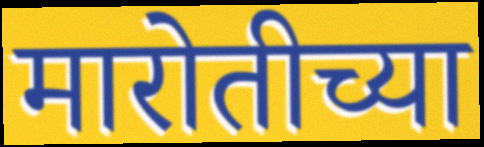
मारोतीच्या